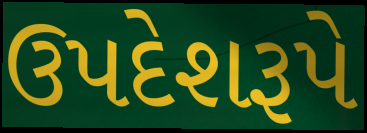
ઉપદેશરૂપે